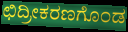
ಛಿದ್ರೀಕರಣಗೊಂಡ